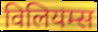
विलियम्स